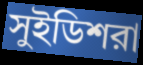
সুইডিশরা